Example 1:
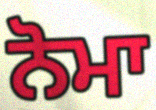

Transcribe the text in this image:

ਨੋਮਾ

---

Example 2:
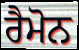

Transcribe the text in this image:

ਰੈਮੋਨ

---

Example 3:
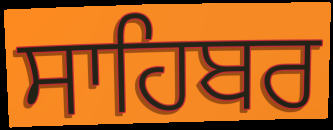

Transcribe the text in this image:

ਸਾਹਿਬਰ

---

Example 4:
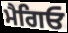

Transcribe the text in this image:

ਮੈਗਿਓ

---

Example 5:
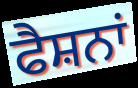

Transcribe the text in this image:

ਫੈਸ਼ਨਾਂ